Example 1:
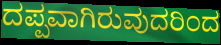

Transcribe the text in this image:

ದಪ್ಪವಾಗಿರುವುದರಿಂದ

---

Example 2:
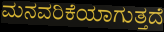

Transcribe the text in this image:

ಮನವರಿಕೆಯಾಗುತ್ತದೆ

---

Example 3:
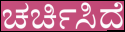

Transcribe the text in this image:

ಚರ್ಚಿಸಿದೆ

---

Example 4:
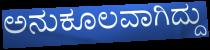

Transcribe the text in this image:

ಅನುಕೂಲವಾಗಿದ್ದು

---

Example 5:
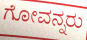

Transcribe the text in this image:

ಗೋವನ್ನರು